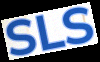
SLS